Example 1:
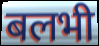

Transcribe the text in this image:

बलभी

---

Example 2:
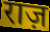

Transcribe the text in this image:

राज़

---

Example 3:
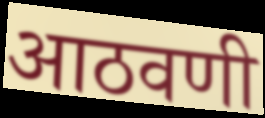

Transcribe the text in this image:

आठवणी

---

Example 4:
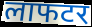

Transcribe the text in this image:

लाफटर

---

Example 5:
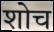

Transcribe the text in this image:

शोच